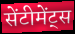
सेंटीमेंट्स